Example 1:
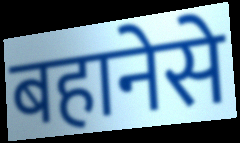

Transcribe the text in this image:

बहानेसे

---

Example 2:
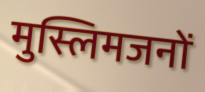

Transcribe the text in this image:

मुस्लिमजनों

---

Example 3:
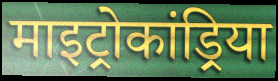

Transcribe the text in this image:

माइट्रोकांड्रिया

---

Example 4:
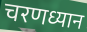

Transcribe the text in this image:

चरणध्यान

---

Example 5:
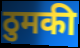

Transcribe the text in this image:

ठुमकी